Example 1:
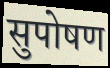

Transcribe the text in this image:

सुपोषण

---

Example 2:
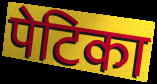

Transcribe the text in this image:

पेटिका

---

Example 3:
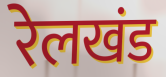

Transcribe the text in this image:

रेलखंड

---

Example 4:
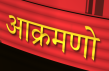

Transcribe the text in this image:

आक्रमणो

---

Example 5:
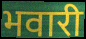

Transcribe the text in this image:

भवारी